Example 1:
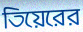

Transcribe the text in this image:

তিয়েরের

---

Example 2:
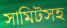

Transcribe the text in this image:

সামিটসহ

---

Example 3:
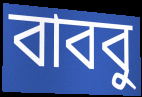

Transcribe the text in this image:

বাববু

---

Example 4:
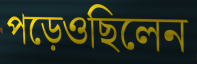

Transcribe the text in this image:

পড়েওছিলেন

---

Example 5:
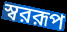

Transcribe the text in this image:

স্বররূপ